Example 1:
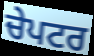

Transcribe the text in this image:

ਚੇਪਟਰ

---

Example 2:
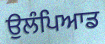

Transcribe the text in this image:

ਉਲੰਪਿਆਡ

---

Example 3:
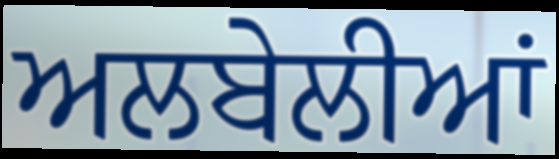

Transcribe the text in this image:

ਅਲਬੇਲੀਆਂ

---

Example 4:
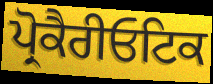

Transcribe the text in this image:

ਪ੍ਰੋਕੈਰੀਓਟਿਕ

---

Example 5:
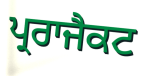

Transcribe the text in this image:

ਪ੍ਰਰਾਜੈਕਟ